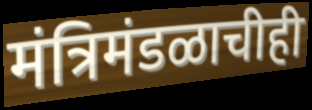
मंत्रिमंडळाचीही